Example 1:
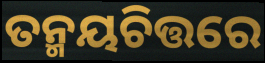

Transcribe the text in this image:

ତନ୍ମୟଚିତ୍ତରେ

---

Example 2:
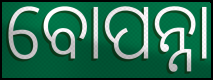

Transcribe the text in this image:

ବୋପନ୍ନା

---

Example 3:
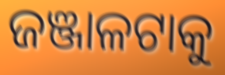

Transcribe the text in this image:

ଜଞ୍ଜାଳଟାକୁ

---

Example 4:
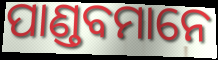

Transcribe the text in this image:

ପାଣ୍ଡବମାନେ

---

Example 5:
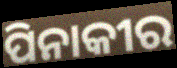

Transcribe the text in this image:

ପିନାକୀର